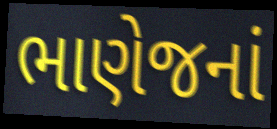
ભાણેજનાં